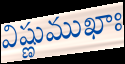
విష్ణుముఖాః